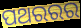
ପଥରରର